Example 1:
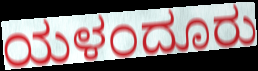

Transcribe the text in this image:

ಯಳಂದೂರು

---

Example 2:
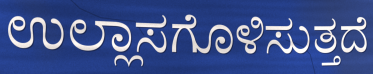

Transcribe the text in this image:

ಉಲ್ಲಾಸಗೊಳಿಸುತ್ತದೆ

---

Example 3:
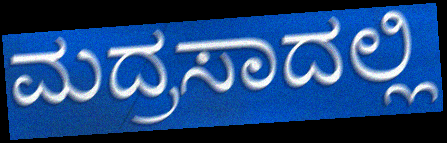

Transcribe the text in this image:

ಮದ್ರಸಾದಲ್ಲಿ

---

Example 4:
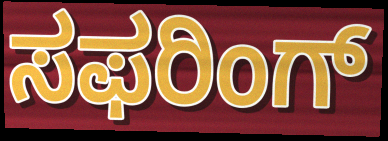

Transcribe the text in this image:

ಸಫರಿಂಗ್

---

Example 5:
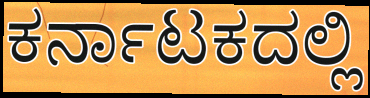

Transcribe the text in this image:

ಕರ್ನಾಟಕದಲ್ಲಿ